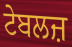
ਟੇਬਲਜ਼